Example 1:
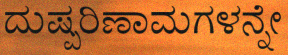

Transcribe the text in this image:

ದುಷ್ಪರಿಣಾಮಗಳನ್ನೇ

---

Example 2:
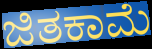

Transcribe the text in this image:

ಜಿತಕಾಮೆ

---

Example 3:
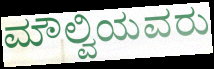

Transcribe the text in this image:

ಮೌಲ್ವಿಯವರು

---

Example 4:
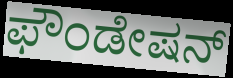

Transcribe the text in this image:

ಫೌಂಡೇಷನ್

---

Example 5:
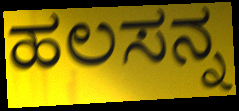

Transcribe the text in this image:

ಹಲಸನ್ನ